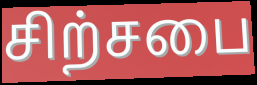
சிற்சபை